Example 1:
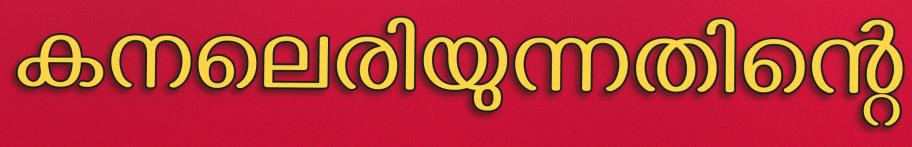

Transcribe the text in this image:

കനലെരിയുന്നതിന്റെ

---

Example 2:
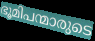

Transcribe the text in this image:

ഭൂമിപന്മാരുടെ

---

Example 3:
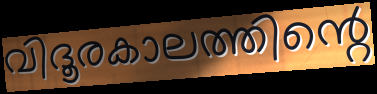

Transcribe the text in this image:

വിദൂരകാലത്തിന്റെ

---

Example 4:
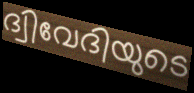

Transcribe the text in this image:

ദ്വിവേദിയുടെ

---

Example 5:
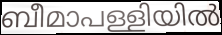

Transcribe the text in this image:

ബീമാപള്ളിയിൽ